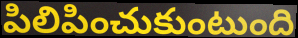
పిలిపించుకుంటుంది